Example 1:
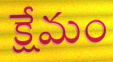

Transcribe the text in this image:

క్షేమం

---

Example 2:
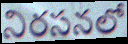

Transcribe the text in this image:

నిరసనలో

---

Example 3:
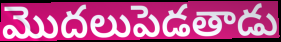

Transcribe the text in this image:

మొదలుపెడతాడు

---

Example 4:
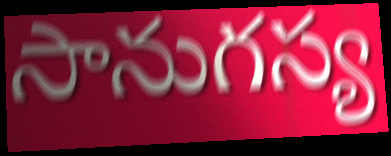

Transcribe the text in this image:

సానుగస్య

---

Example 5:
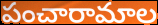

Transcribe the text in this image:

పంచారామాల